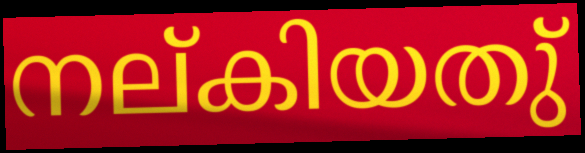
നല്കിയതു്